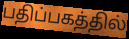
பதிப்பகத்தில்